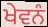
ਖੇਵਨੰ